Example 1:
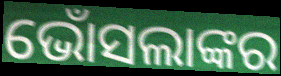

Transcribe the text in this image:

ଭୋଁସଲାଙ୍କର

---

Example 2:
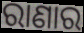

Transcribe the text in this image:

ରାଣାର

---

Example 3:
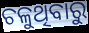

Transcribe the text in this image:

ଚଳୁଥିବାରୁ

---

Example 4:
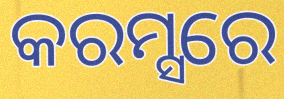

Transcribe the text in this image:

କରମ୍ସରେ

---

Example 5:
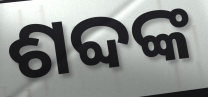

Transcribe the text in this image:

ଶବ୍ଦଙ୍କ